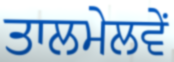
ਤਾਲਮੇਲਵੇਂ